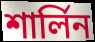
শার্লিন